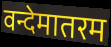
वन्देमातरम